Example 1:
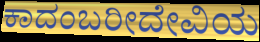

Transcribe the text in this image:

ಕಾದಂಬರೀದೇವಿಯ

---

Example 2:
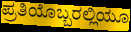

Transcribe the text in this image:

ಪ್ರತಿಯೊಬ್ಬರಲ್ಲಿಯೂ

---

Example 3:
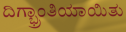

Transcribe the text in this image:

ದಿಗ್ಭ್ರಾಂತಿಯಾಯಿತು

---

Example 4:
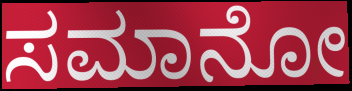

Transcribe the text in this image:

ಸಮಾನೋ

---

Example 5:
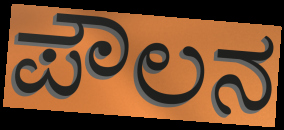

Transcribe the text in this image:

ಪೌಲನ